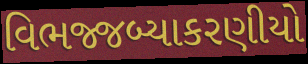
વિભજ્જબ્યાકરણીયો